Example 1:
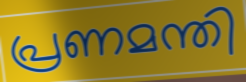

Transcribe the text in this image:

പ്രണമന്തി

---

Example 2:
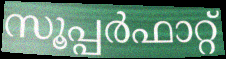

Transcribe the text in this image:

സൂപ്പർഫാറ്റ്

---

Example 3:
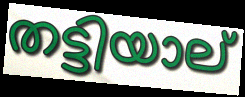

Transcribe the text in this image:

തട്ടിയാല്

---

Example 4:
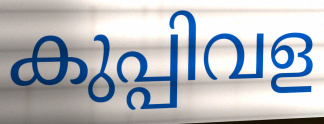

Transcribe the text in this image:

കുപ്പിവള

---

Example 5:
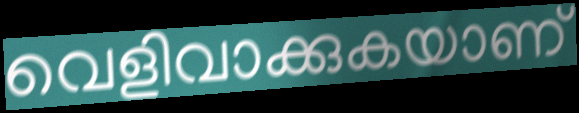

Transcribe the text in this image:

വെളിവാക്കുകയാണ്